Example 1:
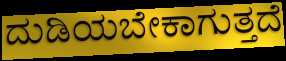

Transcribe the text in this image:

ದುಡಿಯಬೇಕಾಗುತ್ತದೆ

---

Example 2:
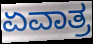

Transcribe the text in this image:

ಏವಾತ್ರ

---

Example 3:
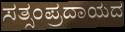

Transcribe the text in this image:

ಸತ್ಸಂಪ್ರದಾಯದ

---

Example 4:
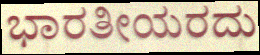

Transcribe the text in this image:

ಭಾರತೀಯರದು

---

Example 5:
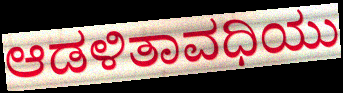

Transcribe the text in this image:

ಆಡಳಿತಾವಧಿಯು